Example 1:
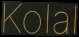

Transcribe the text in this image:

Kolal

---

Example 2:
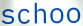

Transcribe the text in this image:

schoo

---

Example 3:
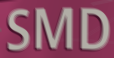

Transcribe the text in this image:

SMD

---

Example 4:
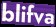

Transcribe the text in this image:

blifva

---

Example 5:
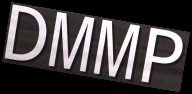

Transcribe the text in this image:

DMMP